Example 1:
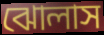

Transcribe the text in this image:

ঝোলাস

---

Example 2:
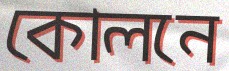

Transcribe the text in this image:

কোলনে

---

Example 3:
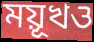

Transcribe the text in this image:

ময়ূখও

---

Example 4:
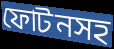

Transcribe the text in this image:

ফোটনসহ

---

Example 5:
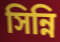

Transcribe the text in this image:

সিন্নি